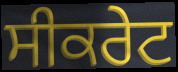
ਸੀਕਰੇਟ